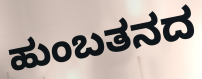
ಹುಂಬತನದ